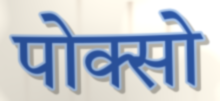
पोक्सो